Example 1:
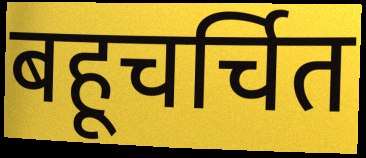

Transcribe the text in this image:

बहूचर्चित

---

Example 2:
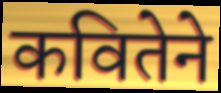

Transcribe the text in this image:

कवितेने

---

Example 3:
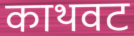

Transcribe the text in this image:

काथवट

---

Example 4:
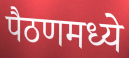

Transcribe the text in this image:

पैठणमध्ये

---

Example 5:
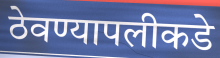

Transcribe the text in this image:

ठेवण्यापलीकडे